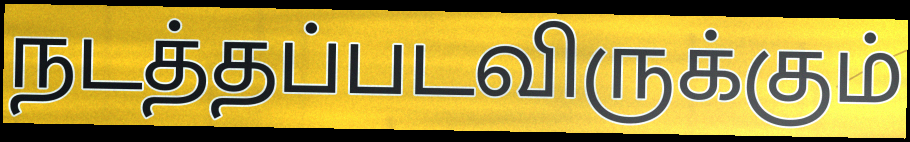
நடத்தப்படவிருக்கும்